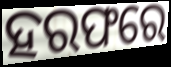
ହରଫରେ